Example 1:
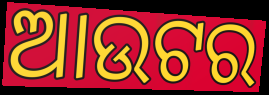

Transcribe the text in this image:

ଆଉଟର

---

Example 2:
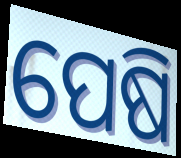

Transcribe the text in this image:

ପେଷି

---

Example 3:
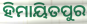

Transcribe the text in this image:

ହିମାୟିତପୁର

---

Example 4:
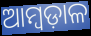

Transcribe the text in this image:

ଆମ୍ବଡ଼ାଳ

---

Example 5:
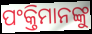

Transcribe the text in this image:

ପଂକ୍ତିମାନଙ୍କୁ